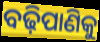
ବଢ଼ିପାଣିକୁ